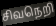
சிவநெறி